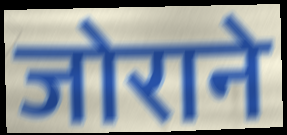
जोराने